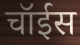
चॉईस